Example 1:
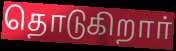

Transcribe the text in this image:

தொடுகிறார்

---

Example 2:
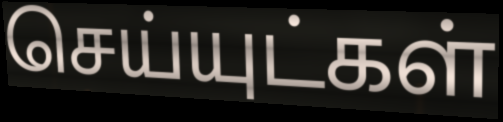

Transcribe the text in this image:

செய்யுட்கள்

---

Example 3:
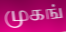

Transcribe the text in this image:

முகங்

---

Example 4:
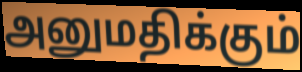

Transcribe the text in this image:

அனுமதிக்கும்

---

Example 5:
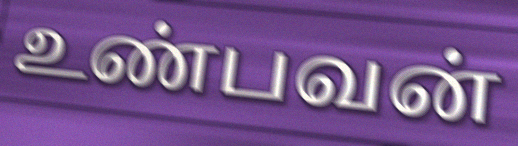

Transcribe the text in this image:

உண்பவன்